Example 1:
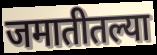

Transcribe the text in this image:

जमातीतल्या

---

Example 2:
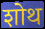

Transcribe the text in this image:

शोथ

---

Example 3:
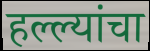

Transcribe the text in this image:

हल्ल्यांचा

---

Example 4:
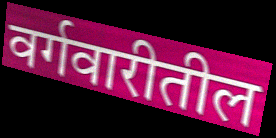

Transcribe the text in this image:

वर्गवारीतील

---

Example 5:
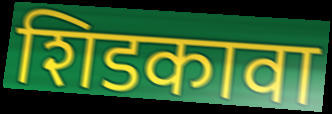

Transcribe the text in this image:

शिडकावा